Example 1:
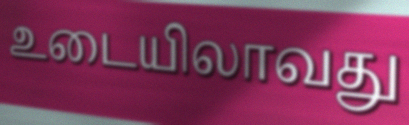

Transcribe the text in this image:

உடையிலாவது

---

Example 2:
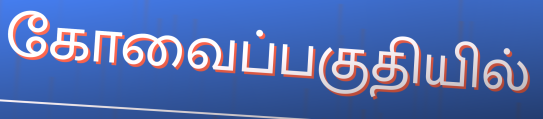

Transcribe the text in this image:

கோவைப்பகுதியில்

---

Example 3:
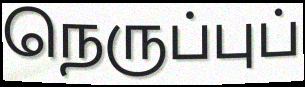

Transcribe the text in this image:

நெருப்புப்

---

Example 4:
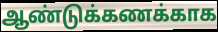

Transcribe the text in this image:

ஆண்டுக்கணக்காக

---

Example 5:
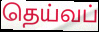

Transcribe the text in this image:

தெய்வப்